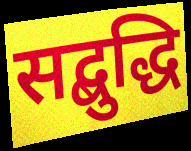
सद्बुद्धि